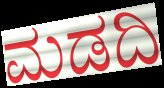
ಮಡದಿ